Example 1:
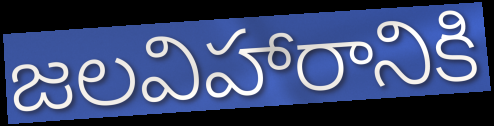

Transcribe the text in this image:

జలవిహారానికి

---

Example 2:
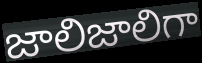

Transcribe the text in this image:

జాలిజాలిగా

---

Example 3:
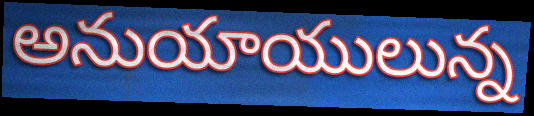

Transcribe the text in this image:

అనుయాయులున్న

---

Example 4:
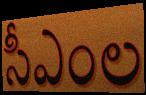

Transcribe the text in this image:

సీఎంల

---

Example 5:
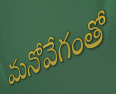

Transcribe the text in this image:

మనోవేగంతో